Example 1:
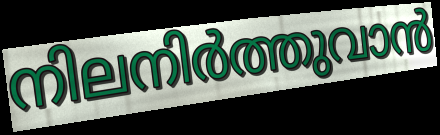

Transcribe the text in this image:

നിലനിർത്തുവാൻ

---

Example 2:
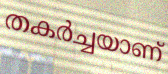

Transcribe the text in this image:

തകർച്ചയാണ്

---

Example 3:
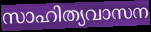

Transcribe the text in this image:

സാഹിത്യവാസന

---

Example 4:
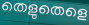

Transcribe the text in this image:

തെളുതെളെ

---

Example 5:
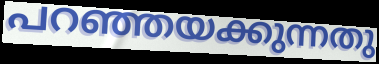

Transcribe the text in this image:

പറഞ്ഞയക്കുന്നതു